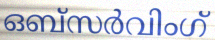
ഒബ്സർവിംഗ്